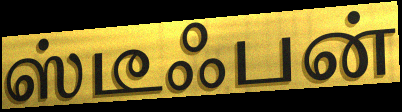
ஸ்டீஃபன்